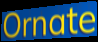
Ornate